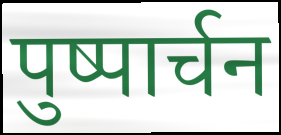
पुष्पार्चन